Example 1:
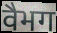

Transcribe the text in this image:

वैभग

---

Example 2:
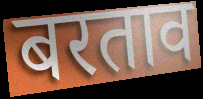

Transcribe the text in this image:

बरताव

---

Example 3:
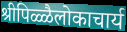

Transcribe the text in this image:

श्रीपिळ्ळैलोकाचार्य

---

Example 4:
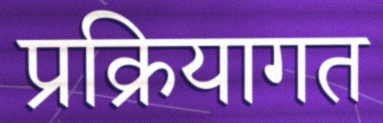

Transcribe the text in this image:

प्रक्रियागत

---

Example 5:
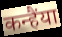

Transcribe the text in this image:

कन्हैंया